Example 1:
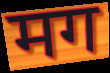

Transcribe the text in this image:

मग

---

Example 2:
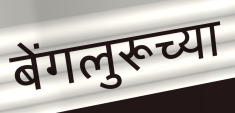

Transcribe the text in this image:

बेंगलुरूच्या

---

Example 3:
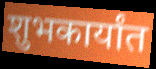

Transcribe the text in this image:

शुभकार्यांत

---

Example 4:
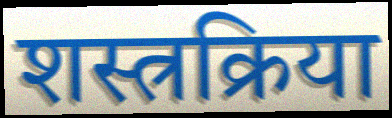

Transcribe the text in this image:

शस्त्रक्रिया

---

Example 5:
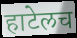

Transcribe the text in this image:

हाटेलच